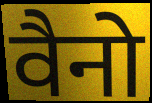
वैनो